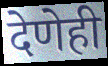
देणेही